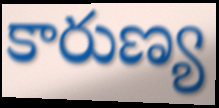
కారుణ్య